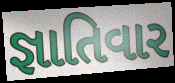
જ્ઞાતિવાર